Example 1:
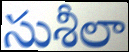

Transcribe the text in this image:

సుశీలా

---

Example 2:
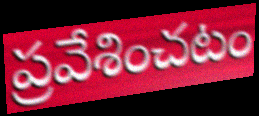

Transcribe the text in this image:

ప్రవేశించటం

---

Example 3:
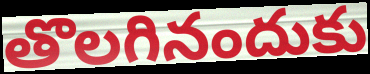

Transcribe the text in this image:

తొలగినందుకు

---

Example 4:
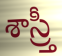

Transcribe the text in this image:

శాస్ర్తీ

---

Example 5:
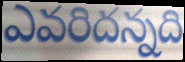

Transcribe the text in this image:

ఎవరిదన్నది